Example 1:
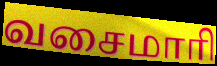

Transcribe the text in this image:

வசைமாரி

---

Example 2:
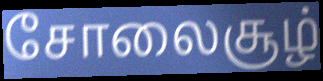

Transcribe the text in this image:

சோலைசூழ்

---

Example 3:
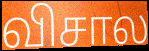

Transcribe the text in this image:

விசால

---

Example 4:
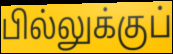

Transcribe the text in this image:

பில்லுக்குப்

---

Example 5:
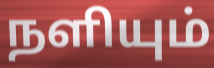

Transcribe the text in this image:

நளியும்